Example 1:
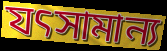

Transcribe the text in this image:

যৎসামান্য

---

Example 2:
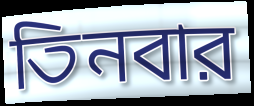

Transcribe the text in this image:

তিনবার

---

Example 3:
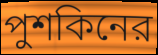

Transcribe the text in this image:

পুশকিনের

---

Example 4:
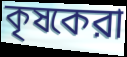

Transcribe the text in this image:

কৃষকেরা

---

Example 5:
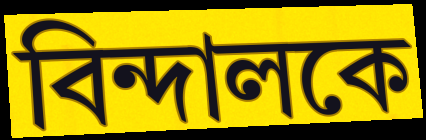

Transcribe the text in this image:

বিন্দালকে